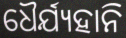
ଧୈର୍ଯ୍ୟହାନି